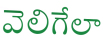
వెలిగేలా